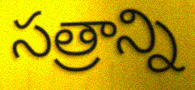
సత్రాన్ని